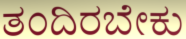
ತಂದಿರಬೇಕು